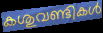
കശുവണ്ടികൾ